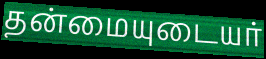
தன்மையுடையர்